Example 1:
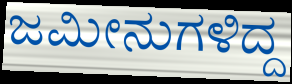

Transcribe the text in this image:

ಜಮೀನುಗಳಿದ್ದ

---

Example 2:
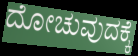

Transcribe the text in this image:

ದೋಚುವುದಕ್ಕೆ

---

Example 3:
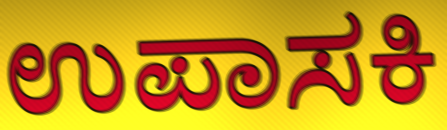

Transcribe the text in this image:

ಉಪಾಸಕಿ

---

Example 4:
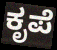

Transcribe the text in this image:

ಕೃಪೆ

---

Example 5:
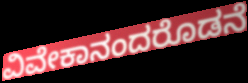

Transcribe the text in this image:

ವಿವೇಕಾನಂದರೊಡನೆ